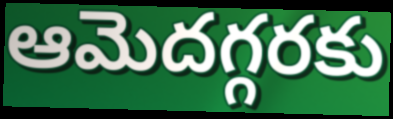
ఆమెదగ్గరకు